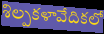
శిల్పకళావేదికలో